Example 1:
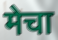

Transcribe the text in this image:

मेचा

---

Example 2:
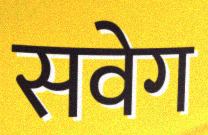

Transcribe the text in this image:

सवेग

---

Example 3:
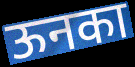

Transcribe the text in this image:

ऊनका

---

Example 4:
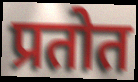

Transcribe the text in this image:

प्रतोत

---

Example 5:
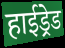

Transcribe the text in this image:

हाईड्रेड